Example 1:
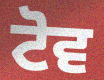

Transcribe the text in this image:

ਟੋਵ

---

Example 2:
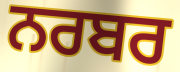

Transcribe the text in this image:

ਨਰਬਰ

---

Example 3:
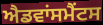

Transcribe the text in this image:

ਐਡਵਾਂਸਮੈਂਟਸ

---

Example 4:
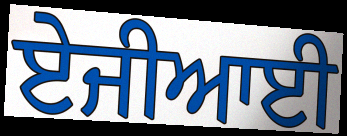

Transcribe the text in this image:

ਏਜੀਆਈ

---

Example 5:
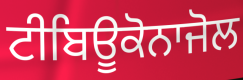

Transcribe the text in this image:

ਟੀਬਿਊਕੋਨਾਜੋਲ